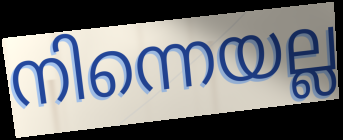
നിന്നെയല്ല